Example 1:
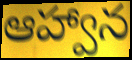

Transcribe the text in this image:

ఆహ్వాన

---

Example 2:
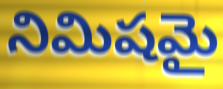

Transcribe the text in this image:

నిమిషమై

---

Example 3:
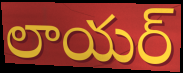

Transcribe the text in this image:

లాయర్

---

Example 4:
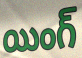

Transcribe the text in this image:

యింగ్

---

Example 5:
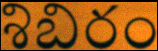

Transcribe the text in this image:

శిబిరం